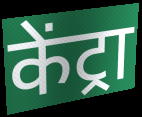
केंट्रा